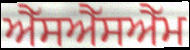
ਐੱਸਐੱਸਐੱਮ